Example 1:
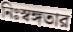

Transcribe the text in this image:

নিঃস্বঙ্গতার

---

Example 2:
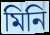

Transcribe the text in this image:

মিনি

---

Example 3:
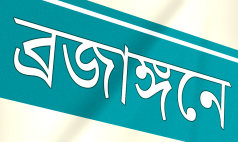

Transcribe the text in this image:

ব্রজাঙ্গনে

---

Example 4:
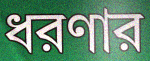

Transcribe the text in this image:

ধরণার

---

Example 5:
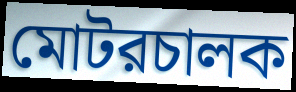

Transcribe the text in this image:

মোটরচালক